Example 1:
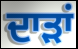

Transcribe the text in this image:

ਦਾੜਾਂ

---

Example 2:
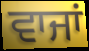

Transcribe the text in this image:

ਵਾਜਾਂ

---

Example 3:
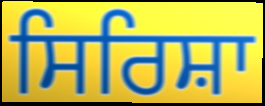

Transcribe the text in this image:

ਸਿਰਿਸ਼ਾ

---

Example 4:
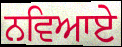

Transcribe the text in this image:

ਨਵਿਆਏ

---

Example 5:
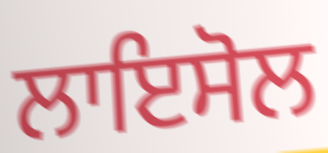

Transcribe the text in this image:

ਲਾਇਸੋਲ